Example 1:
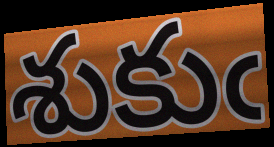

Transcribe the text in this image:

శుకుఁ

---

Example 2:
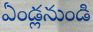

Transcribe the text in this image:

ఏండ్లనుండి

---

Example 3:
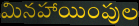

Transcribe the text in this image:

మినహాయింపుల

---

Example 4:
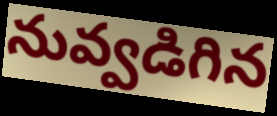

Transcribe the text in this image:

నువ్వడిగిన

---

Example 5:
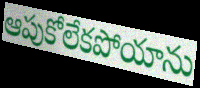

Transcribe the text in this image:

ఆపుకోలేకపోయాను